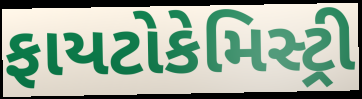
ફાયટોકેમિસ્ટ્રી